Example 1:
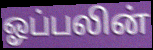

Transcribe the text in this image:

ஓப்பலின்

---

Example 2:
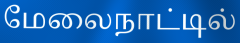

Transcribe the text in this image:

மேலைநாட்டில்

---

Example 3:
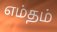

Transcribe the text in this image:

எம்தம்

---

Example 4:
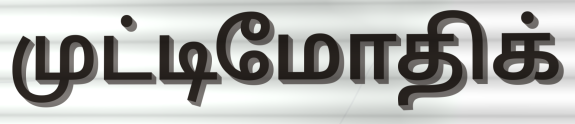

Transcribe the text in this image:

முட்டிமோதிக்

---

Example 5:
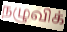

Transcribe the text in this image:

நழுவிக்